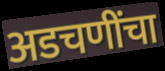
अडचणींचा